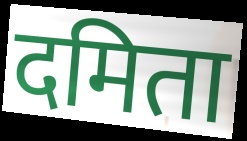
दमिता